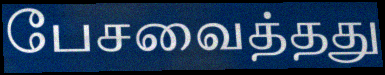
பேசவைத்தது